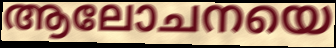
ആലോചനയെ